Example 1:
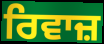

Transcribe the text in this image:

ਰਿਵਾਜ਼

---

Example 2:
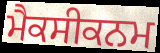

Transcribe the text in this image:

ਮੈਕਸੀਕਨਮ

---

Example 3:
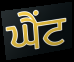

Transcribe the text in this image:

ਘੈਂਟ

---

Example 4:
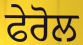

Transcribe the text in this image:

ਫੇਰੋਲ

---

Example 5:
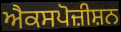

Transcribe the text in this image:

ਐਕਸਪੋਜ਼ੀਸ਼ਨ